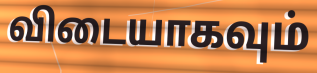
விடையாகவும்